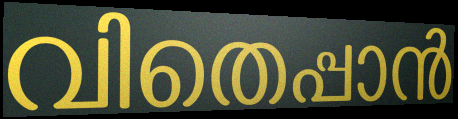
വിതെപ്പാൻ